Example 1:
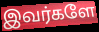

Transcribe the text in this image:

இவர்களே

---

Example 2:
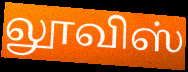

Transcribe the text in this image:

லூவிஸ்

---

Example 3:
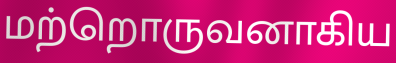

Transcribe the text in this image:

மற்றொருவனாகிய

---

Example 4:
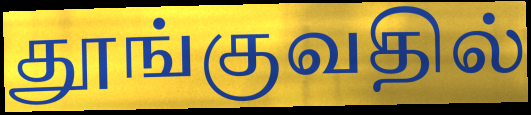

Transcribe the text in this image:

தூங்குவதில்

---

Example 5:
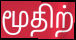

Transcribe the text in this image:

மூதிற்